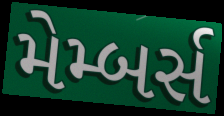
મેમ્બર્સ